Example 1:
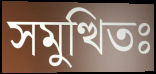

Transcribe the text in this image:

সমুত্থিতঃ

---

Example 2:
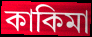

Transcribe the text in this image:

কাকিমা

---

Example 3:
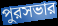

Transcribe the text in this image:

পুরসভার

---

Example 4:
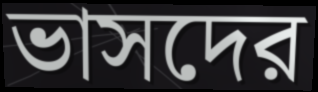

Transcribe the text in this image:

ভাসদের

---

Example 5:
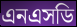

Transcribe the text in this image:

এনএসডি